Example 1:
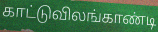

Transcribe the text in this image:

காட்டுவிலங்காண்டி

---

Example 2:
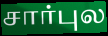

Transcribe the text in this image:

சார்புல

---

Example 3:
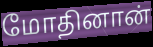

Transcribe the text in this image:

மோதினான்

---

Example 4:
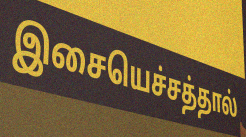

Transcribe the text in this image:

இசையெச்சத்தால்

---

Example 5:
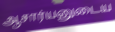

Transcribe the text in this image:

ஆசார்யனுடைய